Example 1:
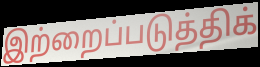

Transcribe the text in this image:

இற்றைப்படுத்திக்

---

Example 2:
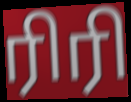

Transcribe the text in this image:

ரிரி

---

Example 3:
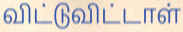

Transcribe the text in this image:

விட்டுவிட்டாள்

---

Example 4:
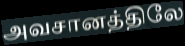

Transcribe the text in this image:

அவசானத்திலே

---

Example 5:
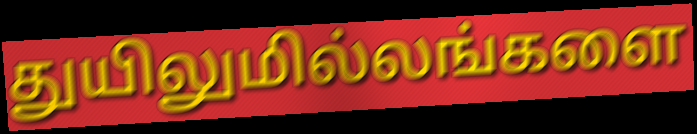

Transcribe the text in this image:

துயிலுமில்லங்களை